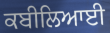
ਕਬੀਲਿਆਈ